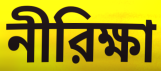
নীরিক্ষা